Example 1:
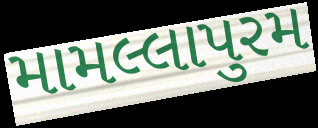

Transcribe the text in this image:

મામલ્લાપુરમ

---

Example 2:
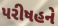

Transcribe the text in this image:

પરીષહને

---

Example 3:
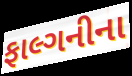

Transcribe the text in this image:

ફાલ્ગનીના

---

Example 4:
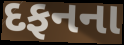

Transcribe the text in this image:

દફનના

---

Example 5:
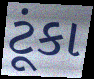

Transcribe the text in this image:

ટૂંકા